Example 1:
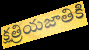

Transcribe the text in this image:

క్షత్రియజాతికి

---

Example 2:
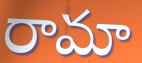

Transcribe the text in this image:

రామా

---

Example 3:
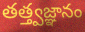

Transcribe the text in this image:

తత్త్వజ్ఞానం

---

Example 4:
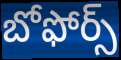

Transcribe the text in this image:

బోఫోర్స్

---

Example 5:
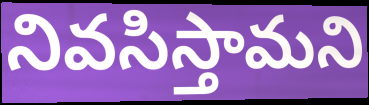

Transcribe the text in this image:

నివసిస్తామని